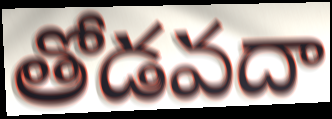
తోడవదా